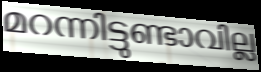
മറന്നിട്ടുണ്ടാവില്ല